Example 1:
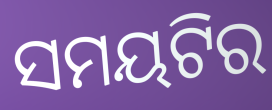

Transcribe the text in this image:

ସମୟଟିର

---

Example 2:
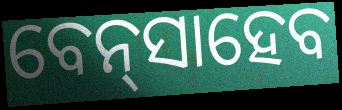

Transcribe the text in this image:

ବେନ୍‌ସାହେବ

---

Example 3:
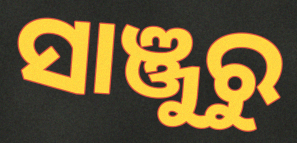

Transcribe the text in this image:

ସାଞ୍ଜୁରୁ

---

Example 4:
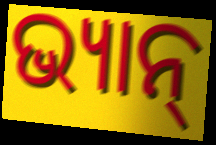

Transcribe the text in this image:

ଭ୍ୟାନ୍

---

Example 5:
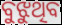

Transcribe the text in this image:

ବୁଝୁଥିବ